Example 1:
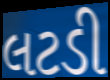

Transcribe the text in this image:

લટડી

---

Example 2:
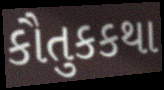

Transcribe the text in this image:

કૌતુકકથા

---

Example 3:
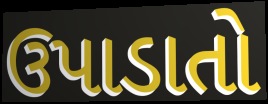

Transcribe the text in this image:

ઉપાડાતો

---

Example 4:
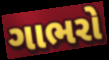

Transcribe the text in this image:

ગાભરો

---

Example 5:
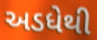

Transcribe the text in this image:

અડધેથી